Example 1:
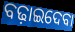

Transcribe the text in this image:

ବଢ଼ାଇଦେବା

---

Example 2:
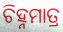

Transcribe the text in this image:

ଚିହ୍ନମାତ୍ର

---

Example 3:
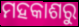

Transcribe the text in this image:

ମହକାଶରୁ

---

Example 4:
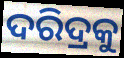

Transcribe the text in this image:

ଦରିଦ୍ରକୁ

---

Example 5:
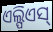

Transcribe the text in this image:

ଏଲ୍ପିଏସ୍